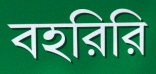
বহরিরি